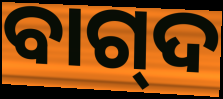
ବାଗ୍‌ଦ